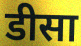
डीसा